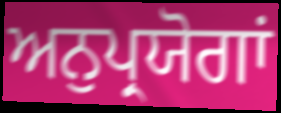
ਅਨੁਪ੍ਰਯੋਗਾਂ